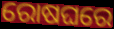
ରୋଷଘରେ